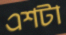
এশটা